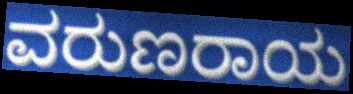
ವರುಣರಾಯ